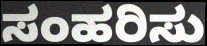
ಸಂಹರಿಸು